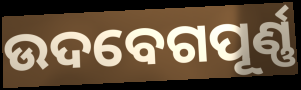
ଉଦବେଗପୂର୍ଣ୍ଣ